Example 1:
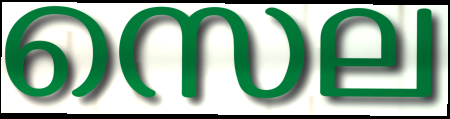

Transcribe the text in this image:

സെല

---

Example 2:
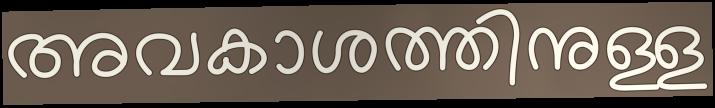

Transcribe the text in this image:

അവകാശത്തിനുള്ള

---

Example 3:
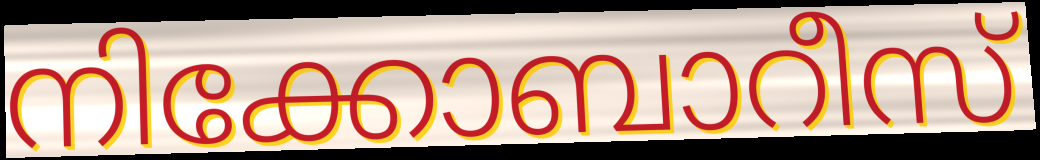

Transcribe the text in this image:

നിക്കോബാറീസ്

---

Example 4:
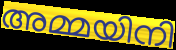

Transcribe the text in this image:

അമ്മയിനി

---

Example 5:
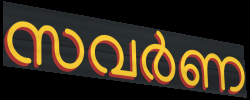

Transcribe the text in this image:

സവർണ